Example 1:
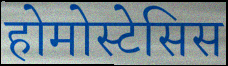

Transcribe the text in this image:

होमोस्टेसिस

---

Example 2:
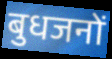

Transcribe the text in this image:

बुधजनों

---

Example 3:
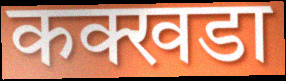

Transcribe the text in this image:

कक्खडा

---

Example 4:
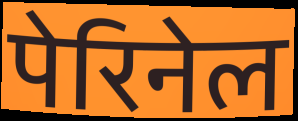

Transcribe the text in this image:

पेरिनेल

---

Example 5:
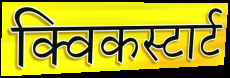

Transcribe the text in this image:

क्विकस्टार्ट